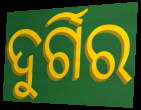
ଦୁର୍ଗିର